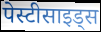
पेस्टीसाइड्स